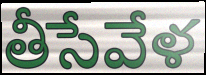
తీసేవేళ